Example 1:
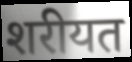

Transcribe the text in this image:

शरीयत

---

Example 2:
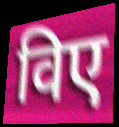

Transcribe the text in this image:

विए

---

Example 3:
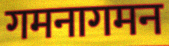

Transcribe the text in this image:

गमनागमन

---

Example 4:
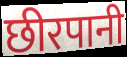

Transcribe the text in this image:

छीरपानी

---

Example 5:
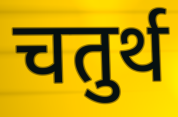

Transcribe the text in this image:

चतुर्थ